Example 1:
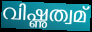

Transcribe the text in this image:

വിഷ്ണുത്വമ്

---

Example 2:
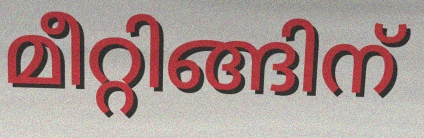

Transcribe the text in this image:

മീറ്റിങ്ങിന്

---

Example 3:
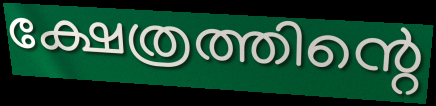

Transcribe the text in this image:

ക്ഷേത്രത്തിന്റെ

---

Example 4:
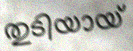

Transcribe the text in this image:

തുടിയായ്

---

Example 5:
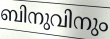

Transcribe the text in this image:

ബിനുവിനും